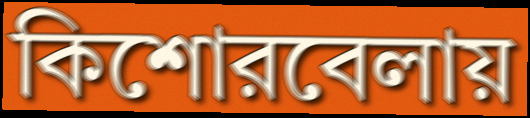
কিশোরবেলায়